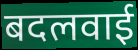
बदलवाई